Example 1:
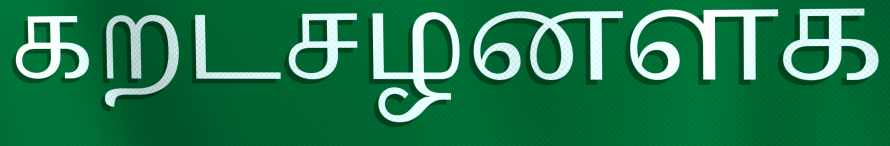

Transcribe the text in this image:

கறடசழனளக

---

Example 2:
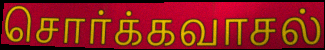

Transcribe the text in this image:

சொர்க்கவாசல்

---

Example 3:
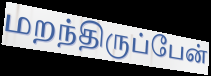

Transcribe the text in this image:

மறந்திருப்பேன்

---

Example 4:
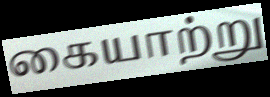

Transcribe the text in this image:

கையாற்று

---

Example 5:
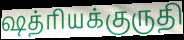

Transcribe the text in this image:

ஷத்ரியக்குருதி